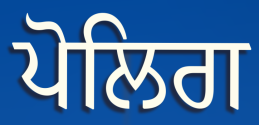
ਪੋਲਿਗ